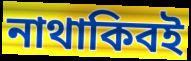
নাথাকিবই